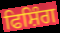
ਫਿਸ਼ਿੰਗ